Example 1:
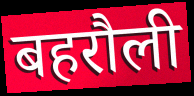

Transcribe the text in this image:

बहरौली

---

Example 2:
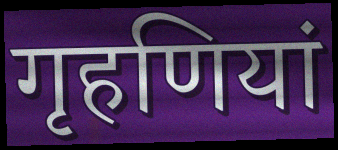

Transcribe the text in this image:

गृहणियां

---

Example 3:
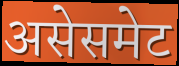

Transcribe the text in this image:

असेसमेट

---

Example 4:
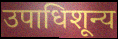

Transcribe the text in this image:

उपाधिशून्य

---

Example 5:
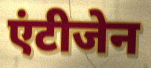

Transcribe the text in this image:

एंटीजेन